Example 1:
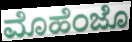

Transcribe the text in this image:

ಮೊಹೆಂಜೊ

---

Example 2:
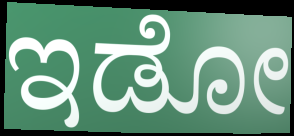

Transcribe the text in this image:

ಇಡೋ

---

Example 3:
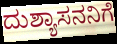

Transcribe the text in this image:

ದುಶ್ಯಾಸನನಿಗೆ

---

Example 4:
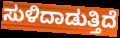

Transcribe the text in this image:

ಸುಳಿದಾಡುತ್ತಿದೆ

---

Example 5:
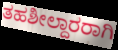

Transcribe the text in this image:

ತಹಶೀಲ್ದಾರರಾಗಿ